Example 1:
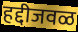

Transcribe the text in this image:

हद्दीजवळ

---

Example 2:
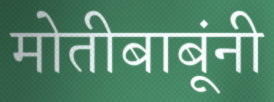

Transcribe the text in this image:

मोतीबाबूंनी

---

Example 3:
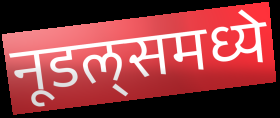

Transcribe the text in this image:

नूडल्समध्ये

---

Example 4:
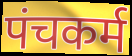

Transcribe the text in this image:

पंचकर्म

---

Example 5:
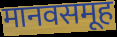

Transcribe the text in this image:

मानवसमूह